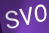
SVO